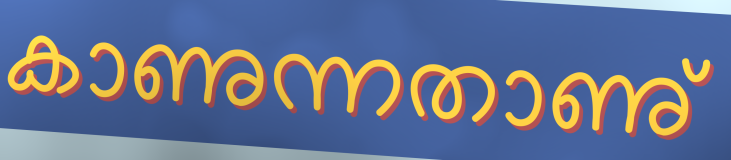
കാണുന്നതാണു്